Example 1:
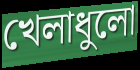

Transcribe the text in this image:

খেলাধুলো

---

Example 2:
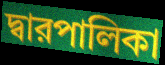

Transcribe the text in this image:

দ্বারপালিকা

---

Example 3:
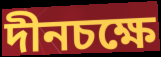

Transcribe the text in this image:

দীনচক্ষে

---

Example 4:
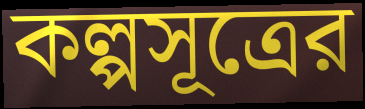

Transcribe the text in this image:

কল্পসূত্রের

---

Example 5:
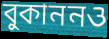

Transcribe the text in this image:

বুকাননও